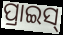
ପ୍ରାଇସ୍